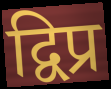
द्विप्र